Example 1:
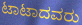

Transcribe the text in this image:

ಟಾಟಾದವರು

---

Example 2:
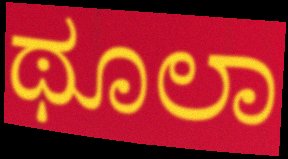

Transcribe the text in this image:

ಥೂಲಾ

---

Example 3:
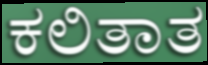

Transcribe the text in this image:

ಕಲಿತಾತ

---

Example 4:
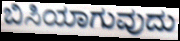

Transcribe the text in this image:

ಬಿಸಿಯಾಗುವುದು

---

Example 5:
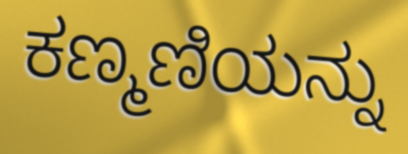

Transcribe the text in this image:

ಕಣ್ಮಣಿಯನ್ನು